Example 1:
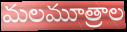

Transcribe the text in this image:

మలమూత్రాల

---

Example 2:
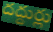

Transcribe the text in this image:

దద్దుర్లు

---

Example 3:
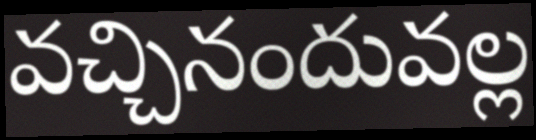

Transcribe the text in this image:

వచ్చినందువల్ల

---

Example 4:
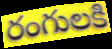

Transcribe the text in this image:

రంగులకి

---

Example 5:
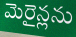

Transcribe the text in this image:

మెరైన్లను